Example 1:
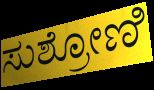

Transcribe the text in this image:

ಸುಶ್ರೋಣಿ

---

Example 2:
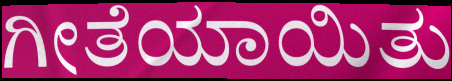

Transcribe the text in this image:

ಗೀತೆಯಾಯಿತು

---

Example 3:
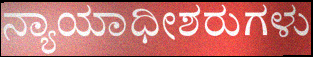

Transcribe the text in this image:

ನ್ಯಾಯಾಧೀಶರುಗಳು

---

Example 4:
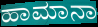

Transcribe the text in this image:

ಹಾಮಾನಾ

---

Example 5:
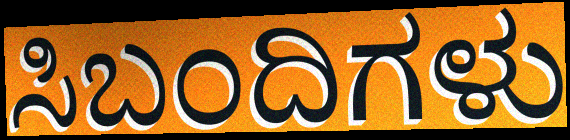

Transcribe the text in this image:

ಸಿಬಂದಿಗಳು